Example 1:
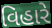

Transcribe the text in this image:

વિહારે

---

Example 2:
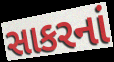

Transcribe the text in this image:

સાકરનાં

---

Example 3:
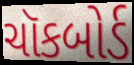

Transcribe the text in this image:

ચૉકબોર્ડ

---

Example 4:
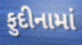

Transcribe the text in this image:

ફુદીનામાં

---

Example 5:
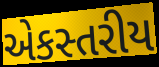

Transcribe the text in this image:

એકસ્તરીય